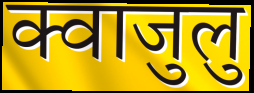
क्वाजुलु